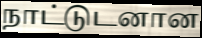
நாட்டுடனான